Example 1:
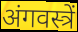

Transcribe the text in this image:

अंगवस्त्रें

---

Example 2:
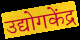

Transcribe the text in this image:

उद्योगकेंद्र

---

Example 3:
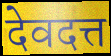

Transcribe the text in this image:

देवदत्त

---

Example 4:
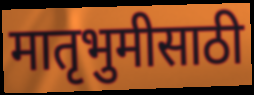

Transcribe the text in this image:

मातृभुमीसाठी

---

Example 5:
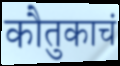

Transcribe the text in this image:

कौतुकाचं